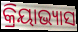
କ୍ରିୟାଭ୍ୟାସ